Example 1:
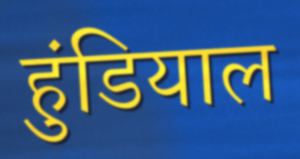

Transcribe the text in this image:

हुंडियाल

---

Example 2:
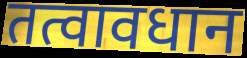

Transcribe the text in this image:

तत्वावधान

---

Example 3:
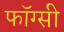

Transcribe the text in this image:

फॉग्सी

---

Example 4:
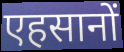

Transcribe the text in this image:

एहसानों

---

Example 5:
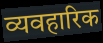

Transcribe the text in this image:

व्यवहारिक